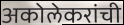
अकोलेकरांची